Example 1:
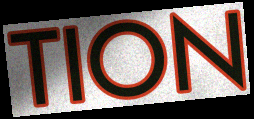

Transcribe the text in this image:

TION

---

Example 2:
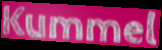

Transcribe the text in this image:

Kummel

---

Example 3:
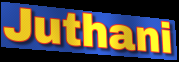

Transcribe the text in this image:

Juthani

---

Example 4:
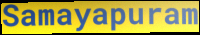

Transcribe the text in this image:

Samayapuram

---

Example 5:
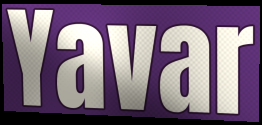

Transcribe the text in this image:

Yavar